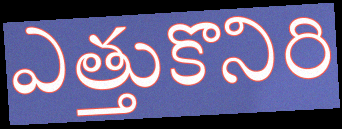
ఎత్తుకొనిరి